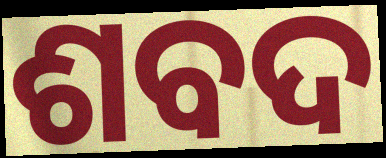
ଶବଦ